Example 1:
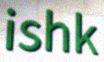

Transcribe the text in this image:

ishk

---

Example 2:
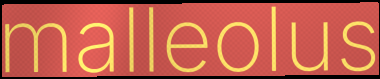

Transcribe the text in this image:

malleolus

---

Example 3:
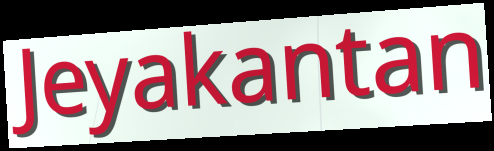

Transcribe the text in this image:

Jeyakantan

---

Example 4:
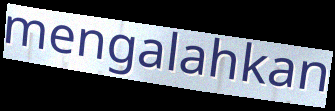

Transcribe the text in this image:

mengalahkan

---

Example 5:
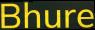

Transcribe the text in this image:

Bhure